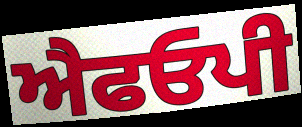
ਐਫਓਪੀ